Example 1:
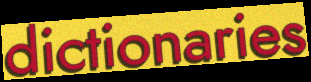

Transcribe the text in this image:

dictionaries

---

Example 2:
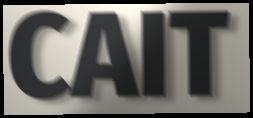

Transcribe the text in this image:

CAIT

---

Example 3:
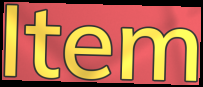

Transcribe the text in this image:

Item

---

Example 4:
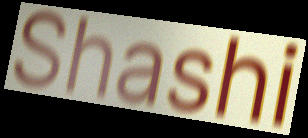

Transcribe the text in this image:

Shashi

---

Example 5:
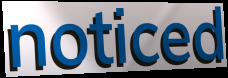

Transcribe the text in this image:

noticed